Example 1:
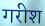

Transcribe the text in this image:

गरीश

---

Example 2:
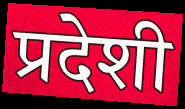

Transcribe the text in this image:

प्रदेशी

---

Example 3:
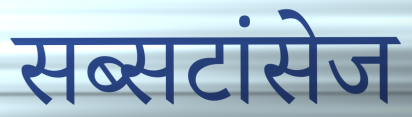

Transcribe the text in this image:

सब्सटांसेज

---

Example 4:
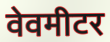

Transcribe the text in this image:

वेवमीटर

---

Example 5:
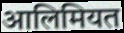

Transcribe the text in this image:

आलिमियत